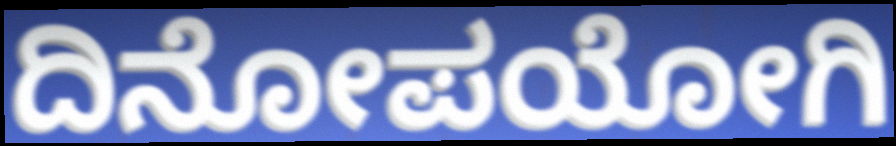
ದಿನೋಪಯೋಗಿ